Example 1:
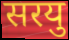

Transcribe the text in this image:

सरयु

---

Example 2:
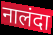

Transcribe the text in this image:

नालंदा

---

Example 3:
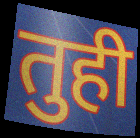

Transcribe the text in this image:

तुही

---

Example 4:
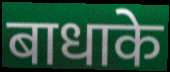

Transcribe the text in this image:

बाधाके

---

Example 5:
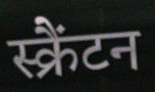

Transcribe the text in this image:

स्क्रैंटन